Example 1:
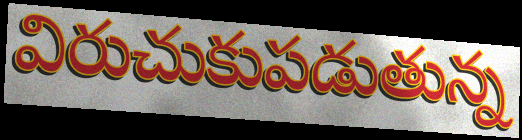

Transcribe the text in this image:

విరుచుకుపడుతున్న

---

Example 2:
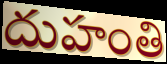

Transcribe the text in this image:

దుహంతి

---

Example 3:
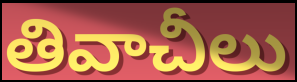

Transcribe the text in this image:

తివాచీలు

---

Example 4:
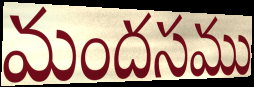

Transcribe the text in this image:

మందసము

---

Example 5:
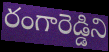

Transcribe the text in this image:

రంగారెడ్డిని